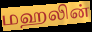
மஹலின்